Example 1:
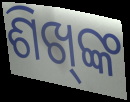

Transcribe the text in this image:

ଶିଖ୍‍ଙ୍କ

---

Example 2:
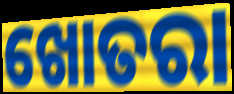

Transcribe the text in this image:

ଖୋତରା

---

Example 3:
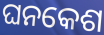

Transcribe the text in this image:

ଘନକେଶ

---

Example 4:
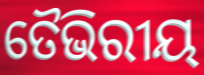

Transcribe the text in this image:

ତୈଭିରୀୟ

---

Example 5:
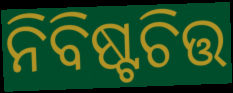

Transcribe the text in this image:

ନିବିଷ୍ଟଚିତ୍ତ